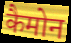
कैमोन